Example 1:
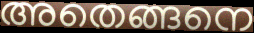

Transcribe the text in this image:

അതെങ്ങനെ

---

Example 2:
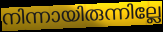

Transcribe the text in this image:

നിന്നായിരുന്നില്ലേ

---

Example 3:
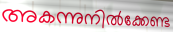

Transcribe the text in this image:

അകന്നുനിൽക്കേണ്ട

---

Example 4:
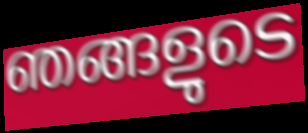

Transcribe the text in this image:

ഞങ്ങളുടെ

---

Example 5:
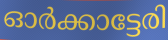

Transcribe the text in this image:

ഓർക്കാട്ടേരി